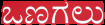
ಒಣಗಲು